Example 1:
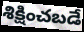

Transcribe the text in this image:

శిక్షించబడే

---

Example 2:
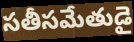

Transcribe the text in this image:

సతీసమేతుడై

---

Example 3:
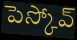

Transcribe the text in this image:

పెస్కోవ్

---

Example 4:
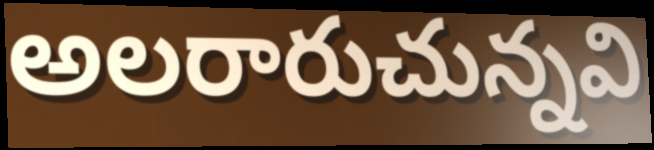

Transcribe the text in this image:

అలరారుచున్నవి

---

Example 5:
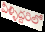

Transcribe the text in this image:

వీళ్ళిద్దరిలో